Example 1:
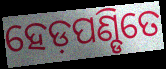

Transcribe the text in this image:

ହେଡ଼ପଣ୍ଡିତେ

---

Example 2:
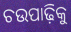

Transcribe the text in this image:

ଚଉପାଢ଼ିକୁ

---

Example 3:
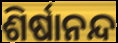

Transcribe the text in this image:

ଶିର୍ଷାନନ୍ଦ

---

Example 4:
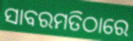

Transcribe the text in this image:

ସାବରମତିଠାରେ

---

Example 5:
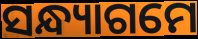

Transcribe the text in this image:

ସନ୍ଧ୍ୟାଗମେ